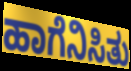
ಹಾಗೆನಿಸಿತು